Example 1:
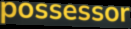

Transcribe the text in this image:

possessor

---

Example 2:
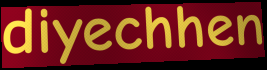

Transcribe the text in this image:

diyechhen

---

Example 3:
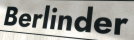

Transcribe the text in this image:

Berlinder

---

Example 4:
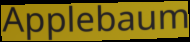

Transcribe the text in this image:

Applebaum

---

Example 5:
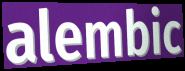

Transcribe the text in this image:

alembic